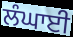
ਲੰਘਾਈ